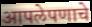
आपलेपणाचे